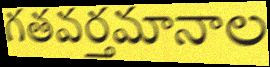
గతవర్తమానాల